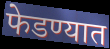
फेडण्यात